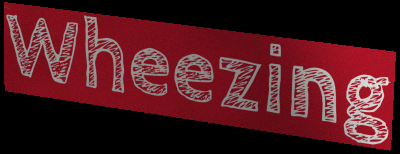
Wheezing